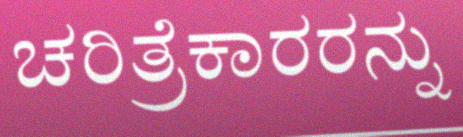
ಚರಿತ್ರೆಕಾರರನ್ನು